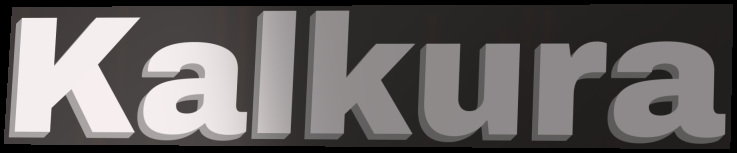
Kalkura